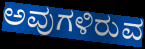
ಅವುಗಳಿರುವ